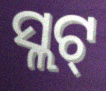
ସ୍ଲଟ୍